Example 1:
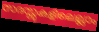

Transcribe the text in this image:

സദസ്സുകളിലെല്ലാം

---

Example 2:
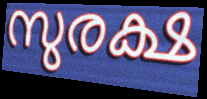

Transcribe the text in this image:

സുരക്ഷ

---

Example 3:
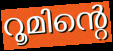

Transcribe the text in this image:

റൂമിന്റെ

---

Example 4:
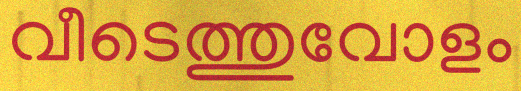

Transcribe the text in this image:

വീടെത്തുവോളം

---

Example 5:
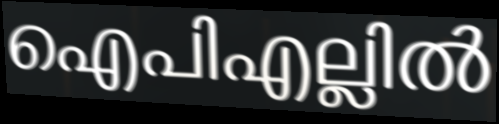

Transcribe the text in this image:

ഐപിഎല്ലിൽ